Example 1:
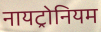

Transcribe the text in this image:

नायट्रोनियम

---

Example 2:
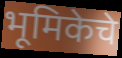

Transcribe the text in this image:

भूमिकेचे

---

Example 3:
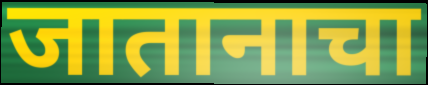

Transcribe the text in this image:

जातानाचा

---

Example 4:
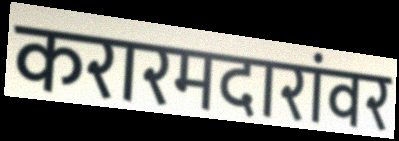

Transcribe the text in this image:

करारमदारांवर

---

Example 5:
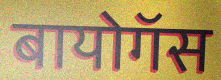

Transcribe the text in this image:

बायोगॅस